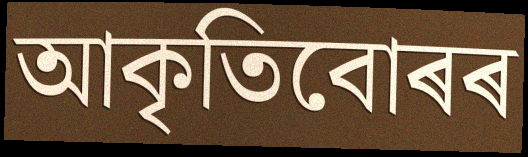
আকৃতিবোৰৰ